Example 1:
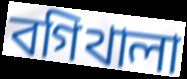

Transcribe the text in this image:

বগিথালা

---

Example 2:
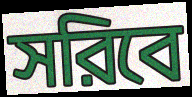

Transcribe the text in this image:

সরিবে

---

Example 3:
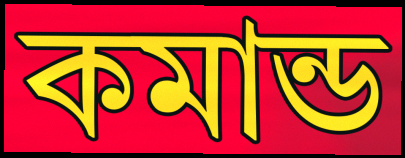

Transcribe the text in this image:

কমান্ড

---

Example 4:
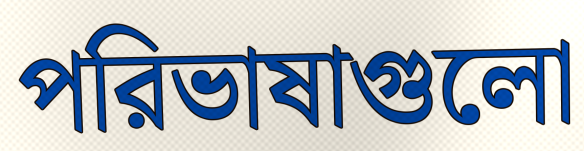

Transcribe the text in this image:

পরিভাষাগুলো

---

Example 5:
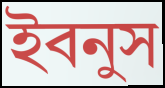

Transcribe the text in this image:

ইবনুস